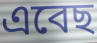
এবেছ